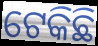
ଟେକିଛି